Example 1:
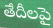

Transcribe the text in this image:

తేదీలపై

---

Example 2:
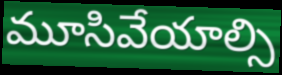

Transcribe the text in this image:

మూసివేయాల్సి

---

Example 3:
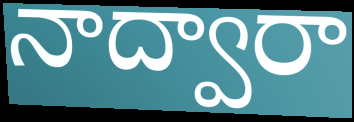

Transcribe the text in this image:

నాద్వారా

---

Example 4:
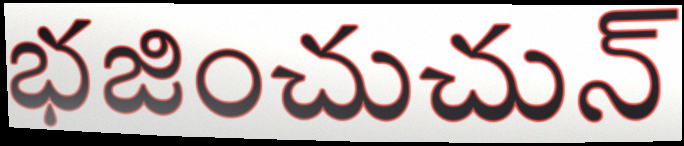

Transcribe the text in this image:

భజించుచున్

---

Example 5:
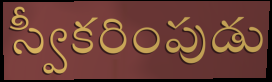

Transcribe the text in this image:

స్వీకరింపుడు